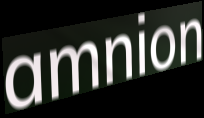
amnion